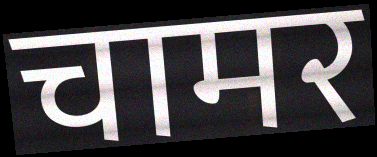
चामर